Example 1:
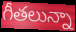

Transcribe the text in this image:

గీతలున్నా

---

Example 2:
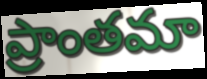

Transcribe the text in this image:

ప్రాంతమా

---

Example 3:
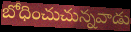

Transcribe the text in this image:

బోధించుచున్నవాడు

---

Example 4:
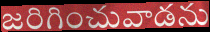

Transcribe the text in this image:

జరిగించువాడను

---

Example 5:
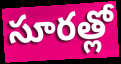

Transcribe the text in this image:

సూరత్లో